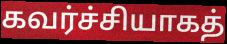
கவர்ச்சியாகத்